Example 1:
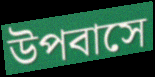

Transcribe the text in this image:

উপবাসে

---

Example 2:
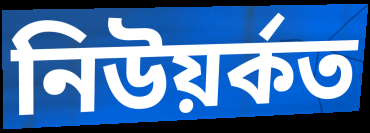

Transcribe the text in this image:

নিউয়ৰ্কত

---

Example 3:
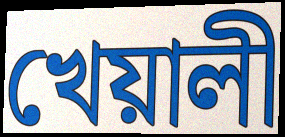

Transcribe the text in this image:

খেয়ালী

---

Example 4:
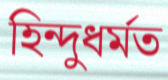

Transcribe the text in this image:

হিন্দুধৰ্মত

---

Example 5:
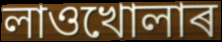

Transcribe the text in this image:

লাওখোলাৰ